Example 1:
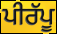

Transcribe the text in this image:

ਪੀਰੱਪੂ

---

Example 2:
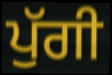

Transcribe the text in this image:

ਪੁੱਗੀ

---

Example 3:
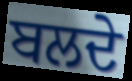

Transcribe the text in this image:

ਬਲਦੇ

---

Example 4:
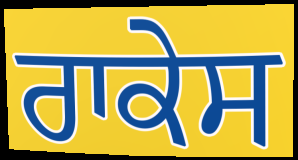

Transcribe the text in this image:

ਰਾਕੇਸ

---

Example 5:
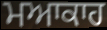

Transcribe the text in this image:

ਮਆਕਾਹ